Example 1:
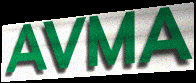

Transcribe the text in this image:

AVMA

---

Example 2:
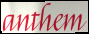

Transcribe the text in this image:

anthem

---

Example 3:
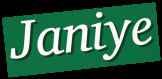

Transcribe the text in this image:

Janiye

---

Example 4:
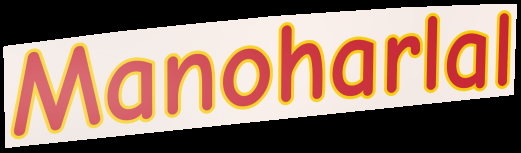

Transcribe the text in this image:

Manoharlal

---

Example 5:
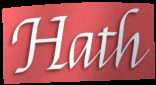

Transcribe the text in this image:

Hath